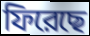
ফিরেছে